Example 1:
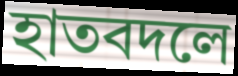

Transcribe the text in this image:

হাতবদলে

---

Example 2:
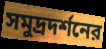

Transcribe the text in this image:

সমুদ্রদর্শনের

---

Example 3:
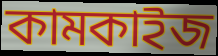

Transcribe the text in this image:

কামকাইজ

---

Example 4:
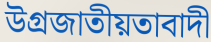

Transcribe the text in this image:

উগ্রজাতীয়তাবাদী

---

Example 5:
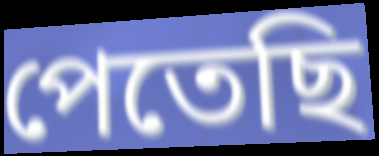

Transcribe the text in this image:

পেতেছি